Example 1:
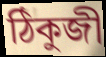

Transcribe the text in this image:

ঠিকুজী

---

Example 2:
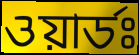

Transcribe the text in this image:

ওয়ার্ডঃ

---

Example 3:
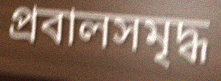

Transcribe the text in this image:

প্রবালসমৃদ্ধ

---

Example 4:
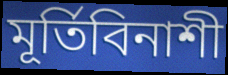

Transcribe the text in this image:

মূর্তিবিনাশী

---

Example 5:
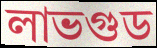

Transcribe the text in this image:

লাভগুড